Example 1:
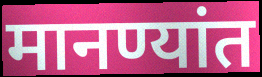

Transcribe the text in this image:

मानण्यांत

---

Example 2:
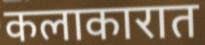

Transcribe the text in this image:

कलाकारात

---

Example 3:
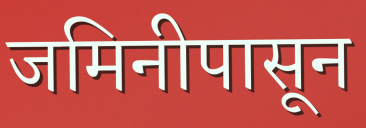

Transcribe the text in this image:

जमिनीपासून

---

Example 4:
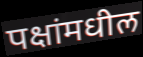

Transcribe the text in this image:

पक्षांमधील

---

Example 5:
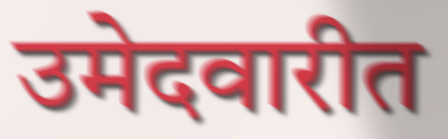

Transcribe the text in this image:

उमेदवारीत